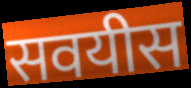
सवयीस